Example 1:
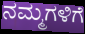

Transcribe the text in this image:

ನಮ್ಮಗಳಿಗೆ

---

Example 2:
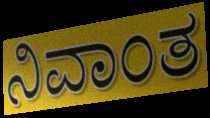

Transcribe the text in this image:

ನಿವಾಂತ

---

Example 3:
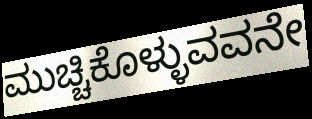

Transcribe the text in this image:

ಮುಚ್ಚಿಕೊಳ್ಳುವವನೇ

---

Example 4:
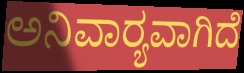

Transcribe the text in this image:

ಅನಿವಾರ‍್ಯವಾಗಿದೆ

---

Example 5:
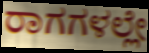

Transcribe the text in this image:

ರಾಗಗಳಲ್ಲೇ